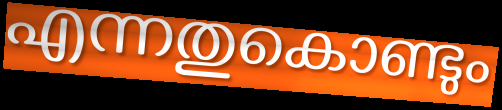
എന്നതുകൊണ്ടും